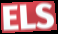
ELS